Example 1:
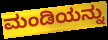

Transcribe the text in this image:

ಮಂಡಿಯನ್ನು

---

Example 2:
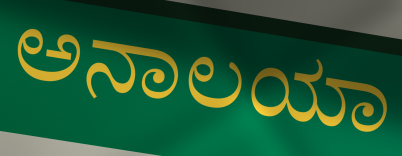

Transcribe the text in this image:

ಅನಾಲಯಾ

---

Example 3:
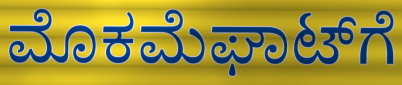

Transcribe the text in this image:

ಮೊಕಮೆಘಾಟ್‌ಗೆ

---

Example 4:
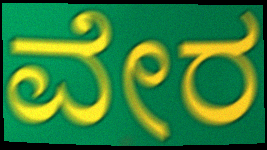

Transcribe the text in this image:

ವೇರ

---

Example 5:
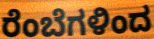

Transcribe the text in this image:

ರೆಂಬೆಗಳಿಂದ